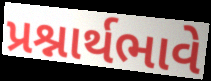
પ્રશ્નાર્થભાવે